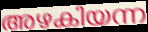
അഴകിയന്ന